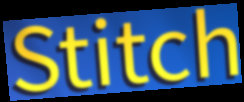
Stitch